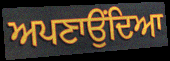
ਅਪਣਾਉਂਦਿਆ